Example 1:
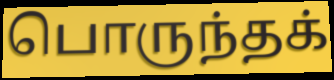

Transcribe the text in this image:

பொருந்தக்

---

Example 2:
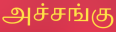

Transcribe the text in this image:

அச்சங்கு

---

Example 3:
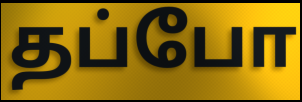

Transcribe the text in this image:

தப்போ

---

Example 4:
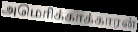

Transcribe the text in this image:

அமெரிக்காக்காரன்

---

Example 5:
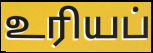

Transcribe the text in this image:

உரியப்